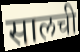
सालची